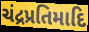
ચંદ્રપ્રતિમાદિ